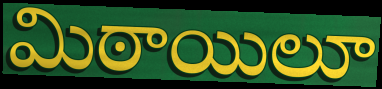
మిఠాయిలూ